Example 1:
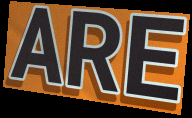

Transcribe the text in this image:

ARE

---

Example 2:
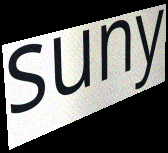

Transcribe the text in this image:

suny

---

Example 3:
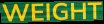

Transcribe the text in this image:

WEIGHT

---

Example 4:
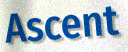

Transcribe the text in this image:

Ascent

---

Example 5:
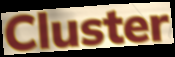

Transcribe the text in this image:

Cluster